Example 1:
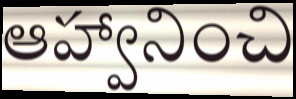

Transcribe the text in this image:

ఆహ్వానించి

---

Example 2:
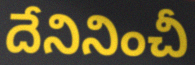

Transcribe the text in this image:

దేనినించీ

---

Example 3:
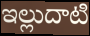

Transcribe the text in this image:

ఇల్లుదాటి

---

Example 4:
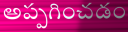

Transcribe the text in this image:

అప్పగించడం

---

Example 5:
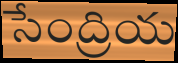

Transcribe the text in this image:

సేంద్రియ